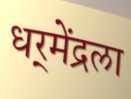
धर्मेंद्रला